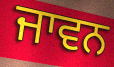
ਜਾਵਨ